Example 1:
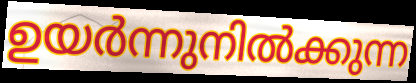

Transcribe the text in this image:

ഉയർന്നുനിൽക്കുന്ന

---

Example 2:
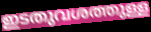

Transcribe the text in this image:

ഇടതുവശത്തുള്ള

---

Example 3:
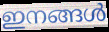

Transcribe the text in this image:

ഇനങ്ങൾ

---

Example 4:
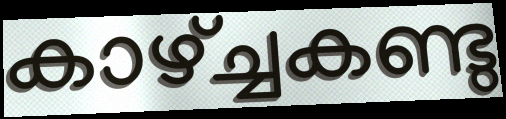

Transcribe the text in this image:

കാഴ്ച്ചകണ്ടു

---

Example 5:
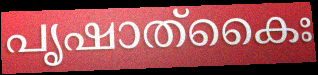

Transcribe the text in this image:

പൃഷാത്കൈഃ